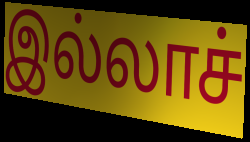
இல்லாச்